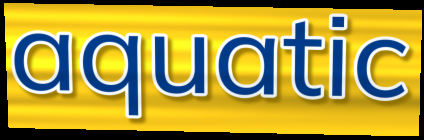
aquatic